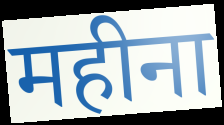
महीना